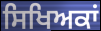
ਸਿਖਿਅਕਾਂ